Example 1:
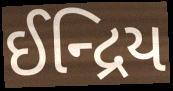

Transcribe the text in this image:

ઈન્દ્રિય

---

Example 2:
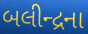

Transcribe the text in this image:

બલીન્દ્રના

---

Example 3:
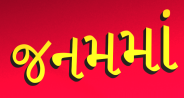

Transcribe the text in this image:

જનમમાં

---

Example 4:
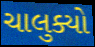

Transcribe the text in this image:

ચાલુક્યો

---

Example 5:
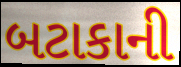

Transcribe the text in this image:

બટાકાની